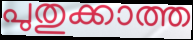
പുതുക്കാത്ത